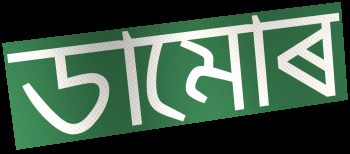
ডামোৰ